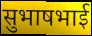
सुभाषभाई